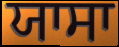
ਯਾਸਾ